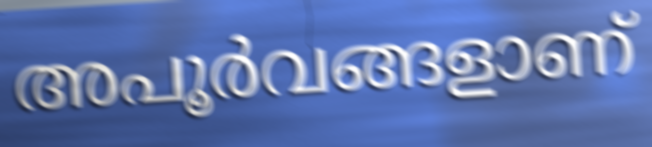
അപൂർവങ്ങളാണ്